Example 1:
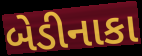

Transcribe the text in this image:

બેડીનાકા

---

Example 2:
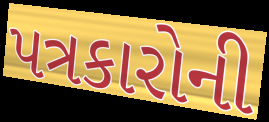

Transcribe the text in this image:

પત્રકારોની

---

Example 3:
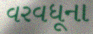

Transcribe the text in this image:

વરવધૂના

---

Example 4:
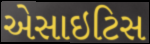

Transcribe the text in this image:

એસાઇટિસ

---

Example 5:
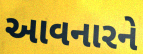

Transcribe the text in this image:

આવનારને